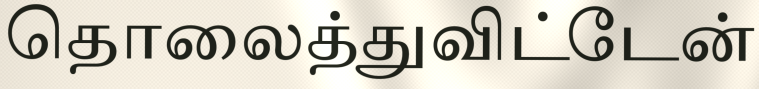
தொலைத்துவிட்டேன்